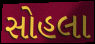
સોહલા